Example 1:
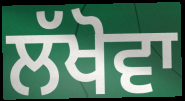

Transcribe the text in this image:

ਲੱਖੋਵਾ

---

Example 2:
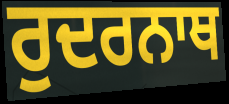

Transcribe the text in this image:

ਰੁਦਰਨਾਥ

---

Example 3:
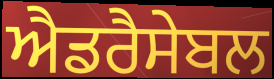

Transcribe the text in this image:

ਐਡਰੈਸੇਬਲ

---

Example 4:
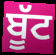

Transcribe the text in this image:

ਬੂੱਟ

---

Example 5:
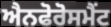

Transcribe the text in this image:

ਐਨਫੋਰੋਸਮੈਂਟ